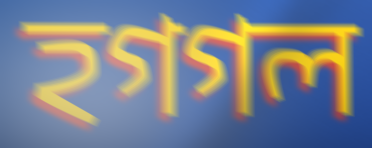
হগগল